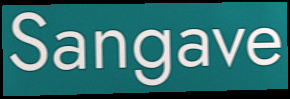
Sangave